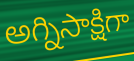
అగ్నిసాక్షిగా